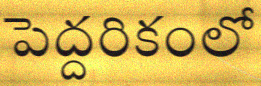
పెద్దరికంలో